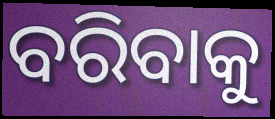
ବରିବାକୁ